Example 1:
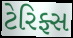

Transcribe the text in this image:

ટેરિફ્સ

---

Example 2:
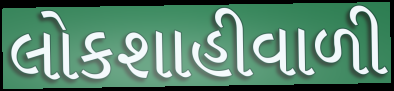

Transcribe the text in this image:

લોકશાહીવાળી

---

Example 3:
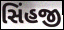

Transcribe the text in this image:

સિંહજી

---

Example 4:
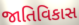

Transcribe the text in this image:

જાતિવિકાસ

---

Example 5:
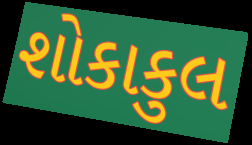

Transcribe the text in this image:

શોકાકુલ